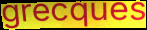
grecques